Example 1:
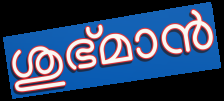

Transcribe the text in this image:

ശുഭ്മാൻ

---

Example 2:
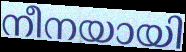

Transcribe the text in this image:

നീനയായി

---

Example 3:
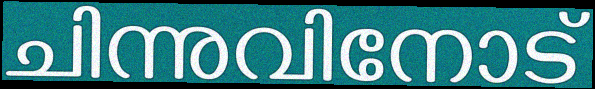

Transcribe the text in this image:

ചിന്നുവിനോട്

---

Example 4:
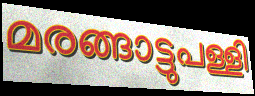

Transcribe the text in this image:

മരങ്ങാട്ടുപള്ളി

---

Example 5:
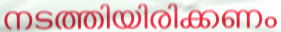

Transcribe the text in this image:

നടത്തിയിരിക്കണം